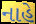
નાહે